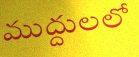
ముద్దులలో